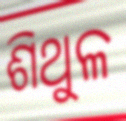
ଶିଥୁଳ